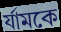
র্যামকে